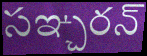
సఞ్చరన్